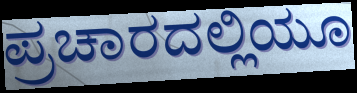
ಪ್ರಚಾರದಲ್ಲಿಯೂ